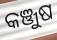
କଞ୍ଜୁଷ